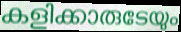
കളിക്കാരുടേയും